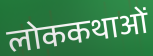
लोककथाओं